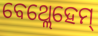
ବେଥ୍ଲେହେମ୍